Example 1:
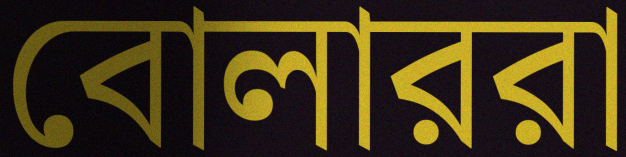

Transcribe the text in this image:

বোলাররা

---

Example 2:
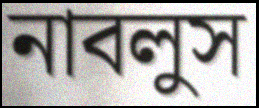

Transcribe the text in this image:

নাবলুস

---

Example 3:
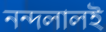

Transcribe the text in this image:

নন্দলালই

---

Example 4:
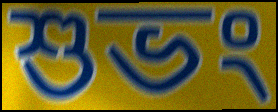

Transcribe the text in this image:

শুভং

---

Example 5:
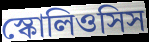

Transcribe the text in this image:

স্কোলিওসিস